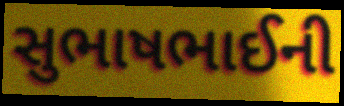
સુભાષભાઈની